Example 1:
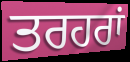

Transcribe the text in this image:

ਤਰਹਰਾਂ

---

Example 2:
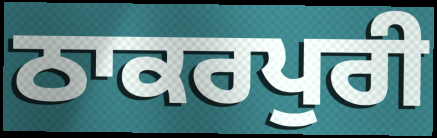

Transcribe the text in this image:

ਠਾਕਰਪੁਰੀ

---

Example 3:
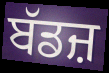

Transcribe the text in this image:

ਬੱਡਜ਼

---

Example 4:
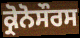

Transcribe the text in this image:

ਕ੍ਰੋਨੋਸੌਰਸ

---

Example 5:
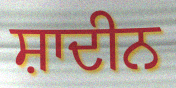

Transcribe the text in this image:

ਸ਼ਾਦੀਨ